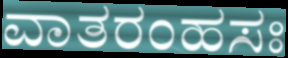
ವಾತರಂಹಸಃ